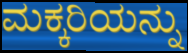
ಮಕ್ಕರಿಯನ್ನು